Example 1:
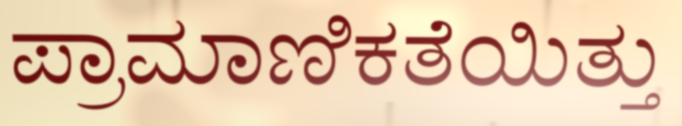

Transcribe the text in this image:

ಪ್ರಾಮಾಣಿಕತೆಯಿತ್ತು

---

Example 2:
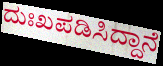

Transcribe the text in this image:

ದುಃಖಪಡಿಸಿದ್ದಾನೆ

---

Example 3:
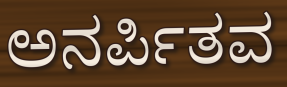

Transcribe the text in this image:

ಅನರ್ಪಿತವ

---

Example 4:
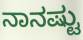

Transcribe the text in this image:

ನಾನಷ್ಟು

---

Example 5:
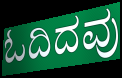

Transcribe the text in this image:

ಓದಿದವು